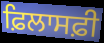
ਫ਼ਿਲਾਸਫ਼ੀ